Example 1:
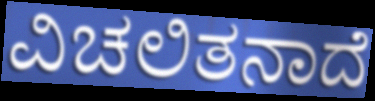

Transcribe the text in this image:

ವಿಚಲಿತನಾದೆ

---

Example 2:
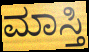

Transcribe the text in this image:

ಮಾಸ್ತಿ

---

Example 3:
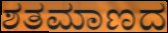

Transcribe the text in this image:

ಶತಮಾಣದ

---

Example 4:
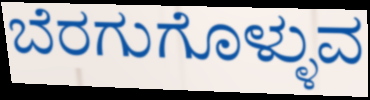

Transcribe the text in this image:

ಬೆರಗುಗೊಳ್ಳುವ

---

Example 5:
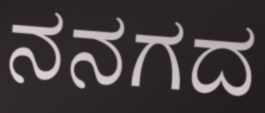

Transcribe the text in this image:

ನನಗದ